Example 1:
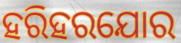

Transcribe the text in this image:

ହରିହରଯୋର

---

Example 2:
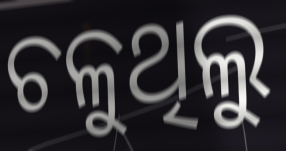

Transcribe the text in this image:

ଚଳୁଥିଲୁ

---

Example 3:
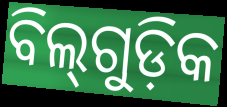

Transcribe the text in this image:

ବିଲ୍‌ଗୁଡ଼ିକ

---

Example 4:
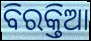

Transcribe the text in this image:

ବିରକ୍ତିଆ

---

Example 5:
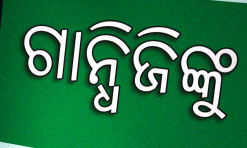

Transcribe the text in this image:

ଗାନ୍ଧିଜିଙ୍କୁ